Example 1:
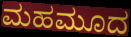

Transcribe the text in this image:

ಮಹಮೂದ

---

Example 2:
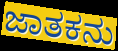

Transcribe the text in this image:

ಜಾತಕನು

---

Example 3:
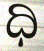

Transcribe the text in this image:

ಧಿ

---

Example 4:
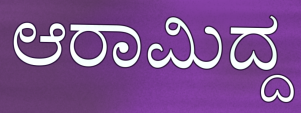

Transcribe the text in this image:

ಆರಾಮಿದ್ದ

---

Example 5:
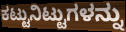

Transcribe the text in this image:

ಕಟ್ಟುನಿಟ್ಟುಗಳನ್ನು